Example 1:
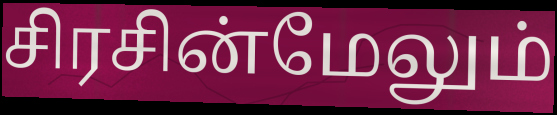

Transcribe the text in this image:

சிரசின்மேலும்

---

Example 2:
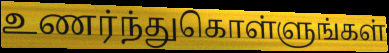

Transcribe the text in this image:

உணர்ந்துகொள்ளுங்கள்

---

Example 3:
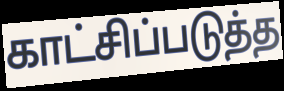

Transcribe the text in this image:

காட்சிப்படுத்த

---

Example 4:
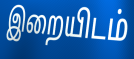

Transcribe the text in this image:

இறையிடம்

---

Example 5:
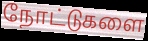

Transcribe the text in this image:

நோட்டுகளை